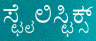
ಸ್ಟೈಲಿಸ್ಟಿಕ್ಸ್